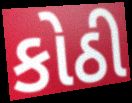
કોઠી